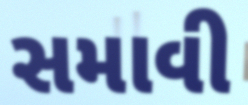
સમાવી